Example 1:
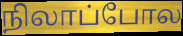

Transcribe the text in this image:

நிலாப்போல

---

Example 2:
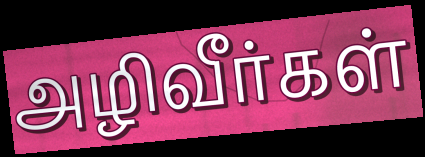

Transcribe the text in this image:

அழிவீர்கள்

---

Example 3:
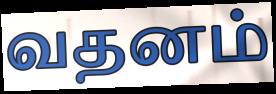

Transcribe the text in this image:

வதனம்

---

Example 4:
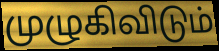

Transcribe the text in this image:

முழுகிவிடும்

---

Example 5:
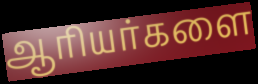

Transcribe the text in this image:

ஆரியர்களை